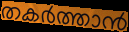
തകർത്താൻ